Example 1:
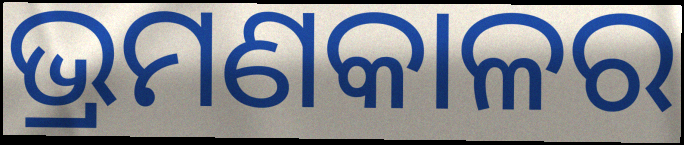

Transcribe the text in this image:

ଭ୍ରମଣକାଳର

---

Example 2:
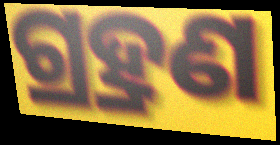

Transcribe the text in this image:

ଗ୍ର୍ରହଣ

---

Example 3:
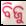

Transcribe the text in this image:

ବିଜୁ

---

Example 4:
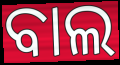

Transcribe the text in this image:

ବାଲ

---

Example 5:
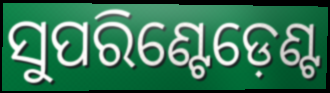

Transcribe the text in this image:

ସୁପରିଣ୍ଟେଡ଼େଣ୍ଟ